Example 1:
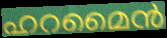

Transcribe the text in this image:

ഹറമൈൻ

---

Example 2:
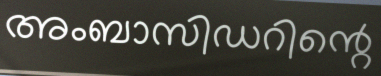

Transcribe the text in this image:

അംബാസിഡറിന്റെ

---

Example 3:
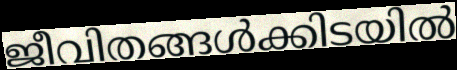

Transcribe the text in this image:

ജീവിതങ്ങൾക്കിടയിൽ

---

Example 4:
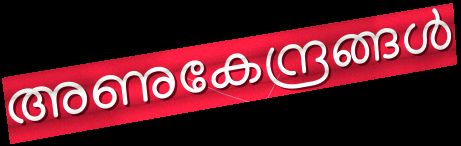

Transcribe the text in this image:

അണുകേന്ദ്രങ്ങൾ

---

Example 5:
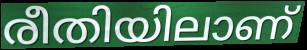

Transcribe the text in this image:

രീതിയിലാണ്